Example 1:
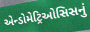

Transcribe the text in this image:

એન્ડોમેટ્રિઓસિસનું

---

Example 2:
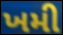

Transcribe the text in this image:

ખમી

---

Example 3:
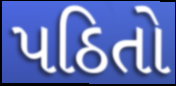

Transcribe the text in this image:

પઠિતો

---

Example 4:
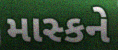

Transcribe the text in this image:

માસ્કને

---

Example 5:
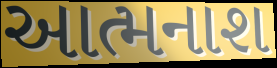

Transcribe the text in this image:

આત્મનાશ